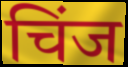
चिंज